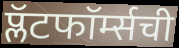
प्लॅटफॉर्म्सची